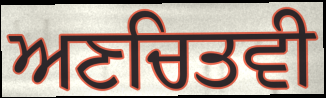
ਅਣਚਿਤਵੀ